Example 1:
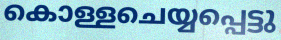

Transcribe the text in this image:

കൊള്ളചെയ്യപ്പെട്ടു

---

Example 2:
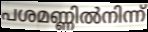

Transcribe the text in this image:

പശമണ്ണിൽനിന്ന്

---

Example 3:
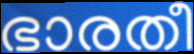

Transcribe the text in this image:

ഭാരതീ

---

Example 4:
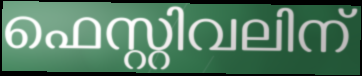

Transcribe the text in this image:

ഫെസ്റ്റിവലിന്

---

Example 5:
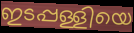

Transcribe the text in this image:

ഇടപ്പള്ളിയെ